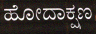
ಹೋದಾಕ್ಷಣ